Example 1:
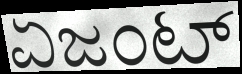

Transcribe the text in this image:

ಏಜಂಟ್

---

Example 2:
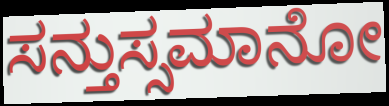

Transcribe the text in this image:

ಸನ್ತುಸ್ಸಮಾನೋ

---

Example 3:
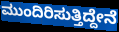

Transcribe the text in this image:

ಮುಂದಿರಿಸುತ್ತಿದ್ದೇನೆ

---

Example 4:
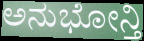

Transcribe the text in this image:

ಅನುಭೋನ್ತಿ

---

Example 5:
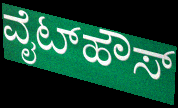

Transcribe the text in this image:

ವೈಟ್‌ಹೌಸ್